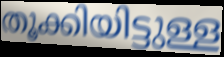
തൂക്കിയിട്ടുള്ള